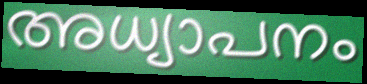
അധ്യാപനം